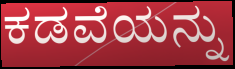
ಕಡವೆಯನ್ನು